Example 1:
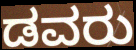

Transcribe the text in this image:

ಡವರು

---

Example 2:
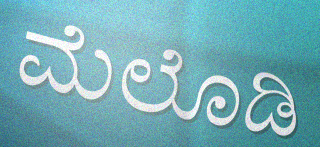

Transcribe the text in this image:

ಮೆಲೊಡಿ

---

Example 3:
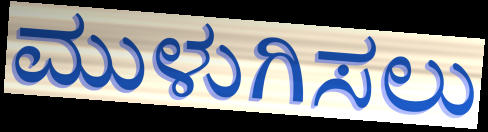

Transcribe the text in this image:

ಮುಳುಗಿಸಲು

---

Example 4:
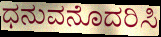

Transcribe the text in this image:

ಧನುವನೊದರಿಸಿ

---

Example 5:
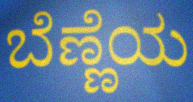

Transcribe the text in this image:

ಬೆಣ್ಣೆಯ